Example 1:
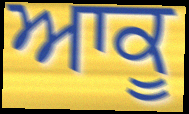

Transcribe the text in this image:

ਆਕੂ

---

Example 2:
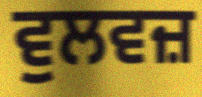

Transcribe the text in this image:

ਵੁਲਵਜ਼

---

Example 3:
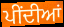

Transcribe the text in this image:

ਪੀਂਦੀਆਂ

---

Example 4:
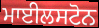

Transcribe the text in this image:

ਮਾਈਲਸਟੋਨ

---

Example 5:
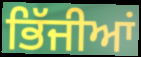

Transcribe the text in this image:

ਭਿੱਜੀਆਂ